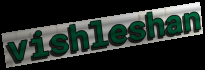
vishleshan